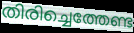
തിരിച്ചെത്തേണ്ട